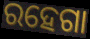
ରହେଗା